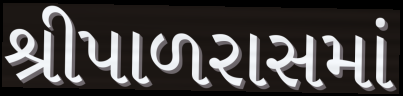
શ્રીપાળરાસમાં